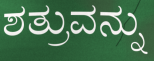
ಶತ್ರುವನ್ನು